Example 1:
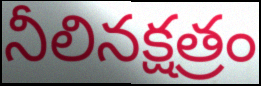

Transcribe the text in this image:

నీలినక్షత్రం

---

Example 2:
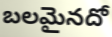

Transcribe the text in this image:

బలమైనదో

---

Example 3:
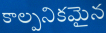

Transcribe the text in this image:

కాల్పనికమైన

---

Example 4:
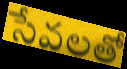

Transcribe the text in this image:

సేవలతో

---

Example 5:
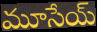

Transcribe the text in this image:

మూసేయ్